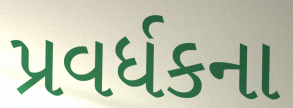
પ્રવર્ધકના